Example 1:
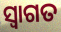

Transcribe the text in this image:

ସ୍ବାଗତ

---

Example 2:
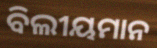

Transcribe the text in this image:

ବିଲୀୟମାନ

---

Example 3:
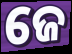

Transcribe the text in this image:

ଜେ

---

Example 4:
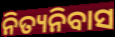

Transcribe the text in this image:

ନିତ୍ୟନିବାସ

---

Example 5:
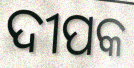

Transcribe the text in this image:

ଦୀପକ